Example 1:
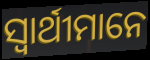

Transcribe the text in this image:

ସ୍ଵାର୍ଥୀମାନେ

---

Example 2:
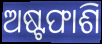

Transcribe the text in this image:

ଅଷ୍ଟଫାଶି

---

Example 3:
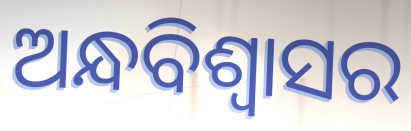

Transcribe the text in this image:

ଅନ୍ଧବିଶ୍ୱାସର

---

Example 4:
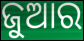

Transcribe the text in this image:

ଜୁଆର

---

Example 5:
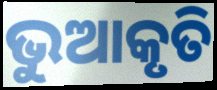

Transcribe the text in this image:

ଭୁଆକୃତି